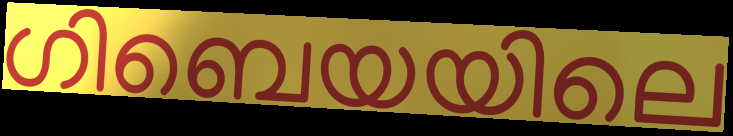
ഗിബെയയിലെ